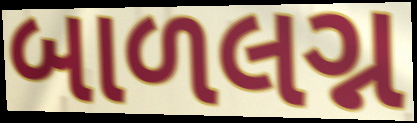
બાળલગ્ન